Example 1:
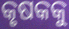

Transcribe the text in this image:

କୃଷକକୁ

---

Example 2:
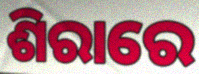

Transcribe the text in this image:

ଶିରାରେ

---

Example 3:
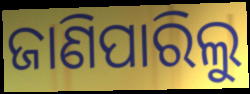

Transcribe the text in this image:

ଜାଣିପାରିଲୁ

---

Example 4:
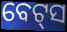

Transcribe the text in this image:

ବେଟ୍‌ସ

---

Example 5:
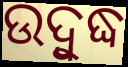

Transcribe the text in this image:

ଉଦ୍ୱୁଦ୍ଧ